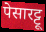
पेसारट्टू